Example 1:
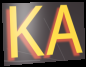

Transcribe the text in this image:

KA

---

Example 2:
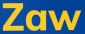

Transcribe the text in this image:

Zaw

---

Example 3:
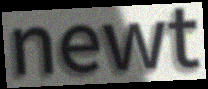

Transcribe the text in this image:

newt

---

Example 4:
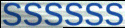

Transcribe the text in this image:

ssssss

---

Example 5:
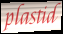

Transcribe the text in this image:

plastid